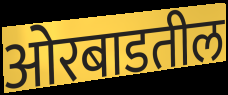
ओरबाडतील